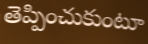
తెప్పించుకుంటూ